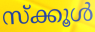
സ്ക്കൂൾ